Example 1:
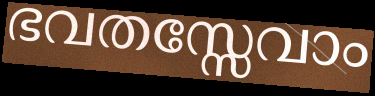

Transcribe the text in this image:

ഭവതസ്സേവാം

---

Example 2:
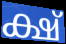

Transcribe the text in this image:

ക്ഷ്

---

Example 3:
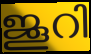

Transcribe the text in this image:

ജൂറി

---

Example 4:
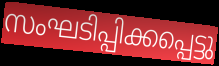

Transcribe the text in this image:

സംഘടിപ്പിക്കപ്പെട്ടു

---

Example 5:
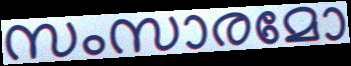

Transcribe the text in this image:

സംസാരമോ